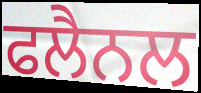
ਫਲੈਨਲ